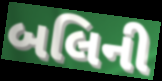
બલિની